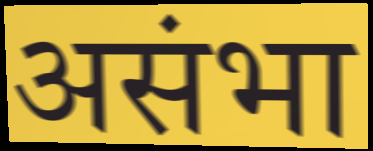
असंभा